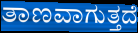
ತಾಣವಾಗುತ್ತದೆ